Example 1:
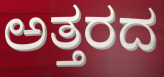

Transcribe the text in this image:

ಅತ್ತರದ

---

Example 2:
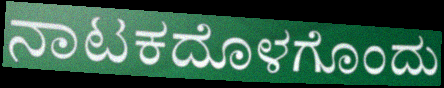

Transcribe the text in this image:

ನಾಟಕದೊಳಗೊಂದು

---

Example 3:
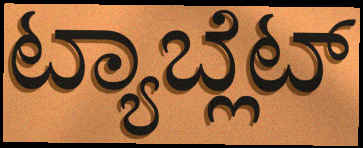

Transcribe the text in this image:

ಟ್ಯಾಬ್ಲೆಟ್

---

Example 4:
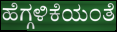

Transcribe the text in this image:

ಹೆಗ್ಗಳಿಕೆಯಂತೆ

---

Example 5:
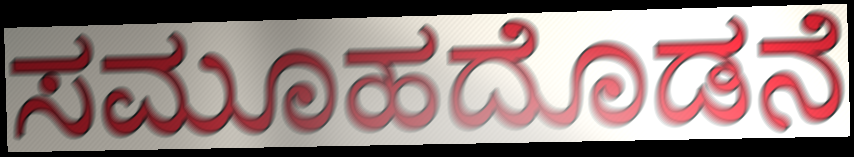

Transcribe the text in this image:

ಸಮೂಹದೊಡನೆ